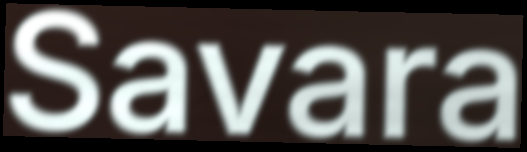
Savara